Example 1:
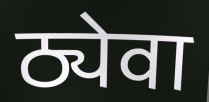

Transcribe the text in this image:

ठ्येवा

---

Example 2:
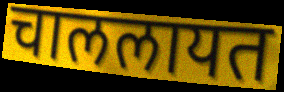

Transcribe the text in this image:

चाललायत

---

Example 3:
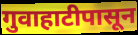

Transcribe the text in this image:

गुवाहाटीपासून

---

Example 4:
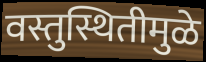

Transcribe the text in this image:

वस्तुस्थितीमुळे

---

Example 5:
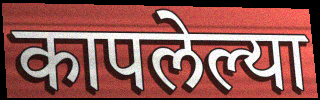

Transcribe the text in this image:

कापलेल्या